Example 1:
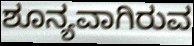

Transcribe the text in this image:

ಶೂನ್ಯವಾಗಿರುವ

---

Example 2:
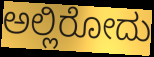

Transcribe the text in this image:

ಅಲ್ಲಿರೋದು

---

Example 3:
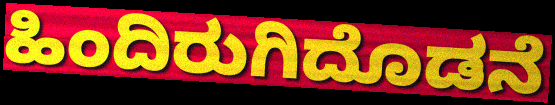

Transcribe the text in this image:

ಹಿಂದಿರುಗಿದೊಡನೆ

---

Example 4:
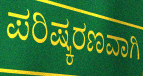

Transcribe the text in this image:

ಪರಿಷ್ಕರಣವಾಗಿ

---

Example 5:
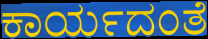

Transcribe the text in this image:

ಕಾರ್ಯದಂತೆ